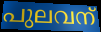
പുലവന്